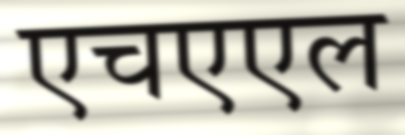
एचएएल